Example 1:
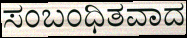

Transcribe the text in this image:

ಸಂಬಂಧಿತವಾದ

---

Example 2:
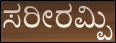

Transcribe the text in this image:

ಸರೀರಮ್ಪಿ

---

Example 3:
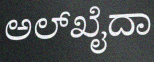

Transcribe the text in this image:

ಅಲ್‌ಖೈದಾ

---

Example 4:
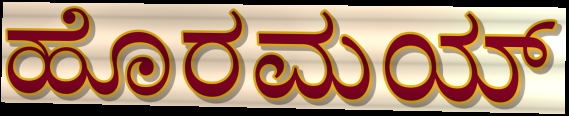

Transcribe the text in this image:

ಹೊರಮಯ್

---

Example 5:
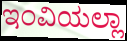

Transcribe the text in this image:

ಇಂವಿಯಲ್ಲಾ